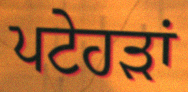
ਪਟੇਹੜਾਂ